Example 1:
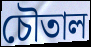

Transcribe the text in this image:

চৌতাল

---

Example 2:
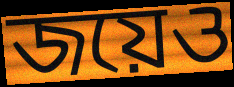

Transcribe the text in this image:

জয়েও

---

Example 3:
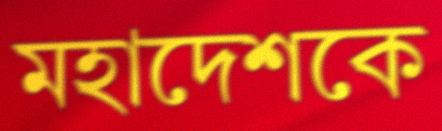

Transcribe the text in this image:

মহাদেশকে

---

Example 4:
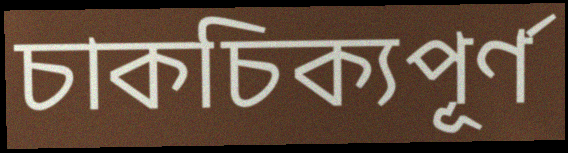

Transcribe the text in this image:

চাকচিক্যপূর্ণ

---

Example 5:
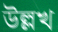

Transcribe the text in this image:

উল্লখ